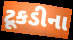
ટૂકડીના